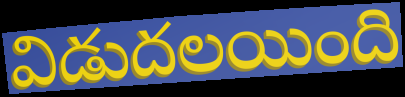
విడుదలయింది